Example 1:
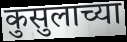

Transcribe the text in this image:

कुसुलाच्या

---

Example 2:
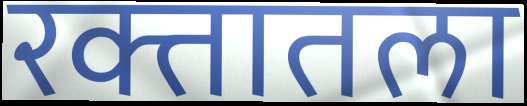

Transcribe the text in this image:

रक्तातला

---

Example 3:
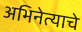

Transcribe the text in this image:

अभिनेत्याचे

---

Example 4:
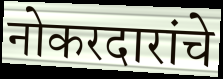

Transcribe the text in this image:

नोकरदारांचे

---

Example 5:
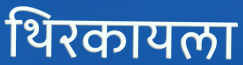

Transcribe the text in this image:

थिरकायला